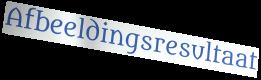
Afbeeldingsresultaat